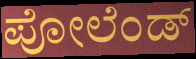
ಪೋಲೆಂಡ್